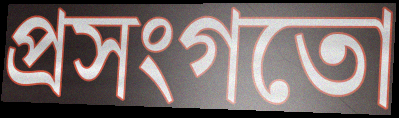
প্ৰসংগতো